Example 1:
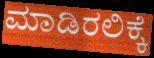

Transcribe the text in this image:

ಮಾಡಿರಲಿಕ್ಕೆ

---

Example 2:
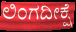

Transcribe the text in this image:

ಲಿಂಗದೀಕ್ಷೆ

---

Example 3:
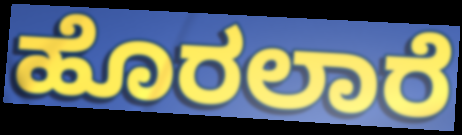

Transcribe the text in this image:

ಹೊರಲಾರೆ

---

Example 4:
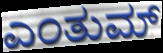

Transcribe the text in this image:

ಎಂತುಮ್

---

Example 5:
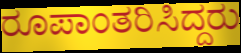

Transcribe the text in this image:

ರೂಪಾಂತರಿಸಿದ್ದರು